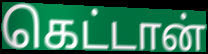
கெட்டான்